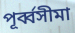
পূর্ব্বসীমা